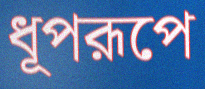
ধূপরূপে